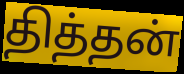
தித்தன்